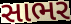
સાભર